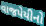
વાજપેયીનો